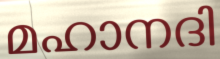
മഹാനദി